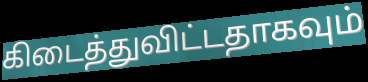
கிடைத்துவிட்டதாகவும்